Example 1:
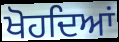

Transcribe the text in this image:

ਖੋਹਦਿਆਂ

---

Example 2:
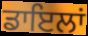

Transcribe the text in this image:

ਡਾਇਲਾਂ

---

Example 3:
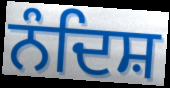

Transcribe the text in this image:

ਨੰਦਿਸ਼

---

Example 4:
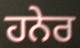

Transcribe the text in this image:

ਹਨੇਰ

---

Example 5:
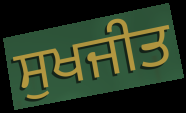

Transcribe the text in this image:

ਸੁਖਜੀਤ